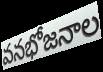
వనభోజనాల